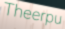
Theerpu